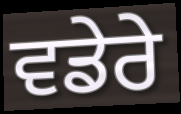
ਵਡੇਰੇ